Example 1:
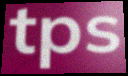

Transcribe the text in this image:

tps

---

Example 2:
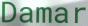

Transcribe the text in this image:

Damar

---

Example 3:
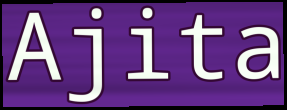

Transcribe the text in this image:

Ajita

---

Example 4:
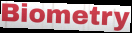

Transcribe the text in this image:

Biometry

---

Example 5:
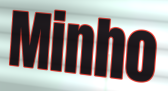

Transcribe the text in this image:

Minho